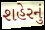
શહેરનું